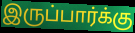
இருப்பார்க்கு